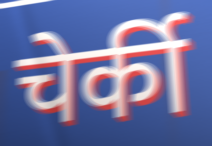
चेर्की